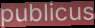
publicus